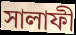
সালাফী